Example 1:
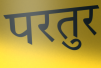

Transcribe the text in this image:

परतुर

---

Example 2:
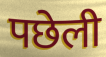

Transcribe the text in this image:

पछेली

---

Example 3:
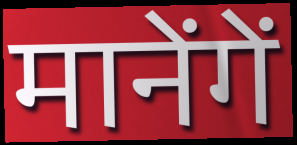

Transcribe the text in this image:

मानेंगें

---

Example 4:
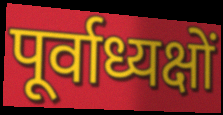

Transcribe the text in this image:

पूर्वाध्यक्षों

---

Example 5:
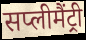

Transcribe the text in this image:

सप्लीमैंट्री